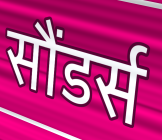
सौंडर्स